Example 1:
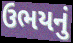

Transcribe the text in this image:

ઉભયનું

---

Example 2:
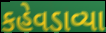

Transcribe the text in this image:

કહેવડાવ્યા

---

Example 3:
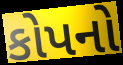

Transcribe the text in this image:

કોપનો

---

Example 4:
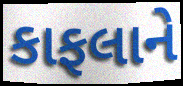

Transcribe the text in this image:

કાફલાને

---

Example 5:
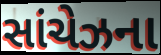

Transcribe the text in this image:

સાંચેઝના